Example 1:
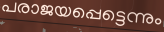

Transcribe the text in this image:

പരാജയപ്പെട്ടെന്നും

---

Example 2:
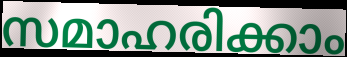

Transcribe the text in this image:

സമാഹരിക്കാം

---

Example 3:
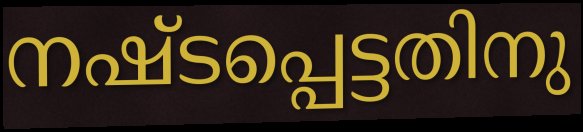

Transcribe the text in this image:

നഷ്ടപ്പെട്ടതിനു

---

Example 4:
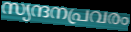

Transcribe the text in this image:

സ്യന്ദനപ്രവരം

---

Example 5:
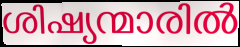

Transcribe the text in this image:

ശിഷ്യന്മാരിൽ